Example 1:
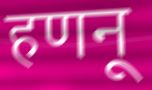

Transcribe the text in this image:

हणनू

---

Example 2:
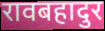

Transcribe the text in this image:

रावबहादुर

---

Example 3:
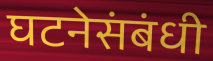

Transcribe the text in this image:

घटनेसंबंधी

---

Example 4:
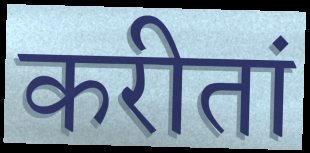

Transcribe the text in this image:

करीतां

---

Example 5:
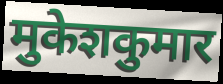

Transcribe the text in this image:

मुकेशकुमार